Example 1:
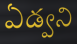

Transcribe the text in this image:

ఏడ్వని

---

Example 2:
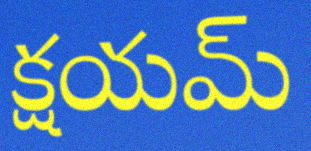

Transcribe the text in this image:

క్షయమ్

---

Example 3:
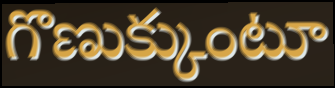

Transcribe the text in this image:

గొణుక్కుంటూ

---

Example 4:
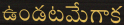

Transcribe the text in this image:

ఉండటమేగాక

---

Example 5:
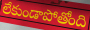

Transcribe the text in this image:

లేకుండాపోతోంది